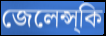
জেলেন্স্কি